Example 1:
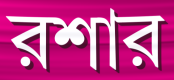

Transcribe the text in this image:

রশার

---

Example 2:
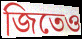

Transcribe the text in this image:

জিতেও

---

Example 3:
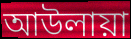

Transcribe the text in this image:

আউলায়া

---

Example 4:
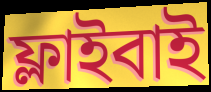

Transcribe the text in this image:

ফ্লাইবাই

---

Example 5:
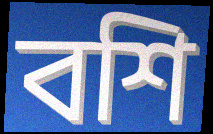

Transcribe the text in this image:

বশি